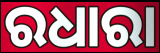
ରଧାରା